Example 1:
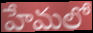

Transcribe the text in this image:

హేమలో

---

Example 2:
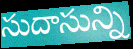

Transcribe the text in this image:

సుదాసున్ని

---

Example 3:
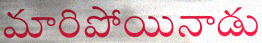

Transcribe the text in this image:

మారిపోయినాడు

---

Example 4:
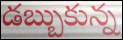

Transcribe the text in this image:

డబ్బుకున్న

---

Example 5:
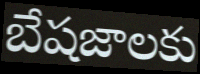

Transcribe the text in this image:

బేషజాలకు